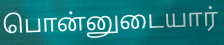
பொன்னுடையார்